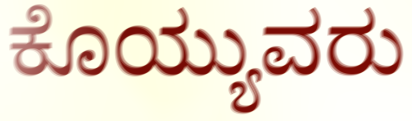
ಕೊಯ್ಯುವರು